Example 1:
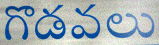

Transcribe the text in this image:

గొడవలు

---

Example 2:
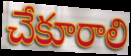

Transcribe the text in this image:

చేకూరాలి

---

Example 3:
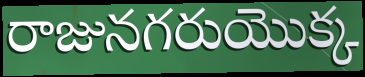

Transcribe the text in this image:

రాజునగరుయొక్క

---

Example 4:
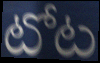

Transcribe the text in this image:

టోట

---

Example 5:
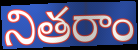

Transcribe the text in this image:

నితరాం